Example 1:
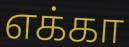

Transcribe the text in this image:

எக்கா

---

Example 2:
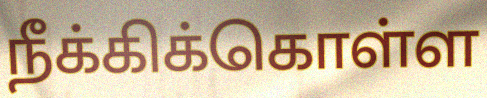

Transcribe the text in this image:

நீக்கிக்கொள்ள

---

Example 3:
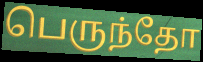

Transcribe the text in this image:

பெருந்தோ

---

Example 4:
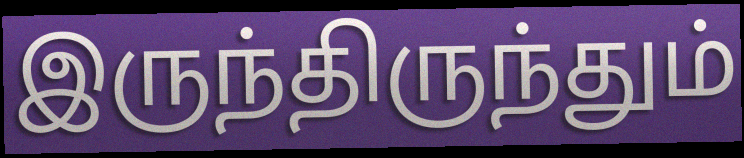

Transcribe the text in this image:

இருந்திருந்தும்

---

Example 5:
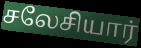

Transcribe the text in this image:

சலேசியார்